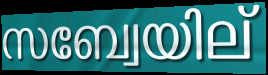
സബ്വേയില്